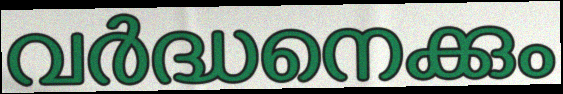
വർദ്ധനെക്കും